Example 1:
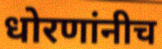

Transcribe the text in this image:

धोरणांनीच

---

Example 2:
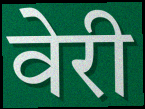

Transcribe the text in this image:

वेरी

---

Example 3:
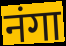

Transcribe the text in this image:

नंगा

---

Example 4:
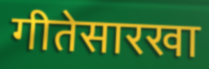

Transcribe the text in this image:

गीतेसारखा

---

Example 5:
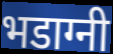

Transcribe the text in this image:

भडाग्नी